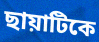
ছায়াটিকে